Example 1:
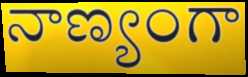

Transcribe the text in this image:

నాణ్యంగా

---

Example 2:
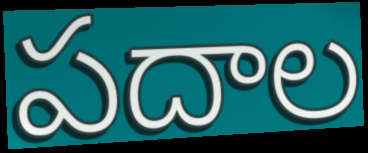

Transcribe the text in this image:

పదాల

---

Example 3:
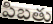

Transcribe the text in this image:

పిబతు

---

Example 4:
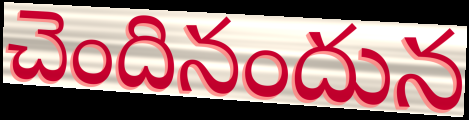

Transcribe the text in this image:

చెందినందున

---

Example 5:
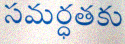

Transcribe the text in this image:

సమర్ధతకు